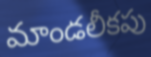
మాండలీకపు